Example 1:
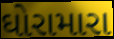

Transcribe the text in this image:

ઘોરામારા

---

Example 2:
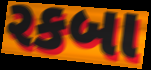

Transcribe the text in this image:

રકબા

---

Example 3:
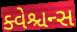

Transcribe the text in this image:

ક્વેશ્ચન્સ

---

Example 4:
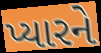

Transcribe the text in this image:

પ્યારને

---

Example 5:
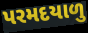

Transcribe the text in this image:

પરમદયાળુ